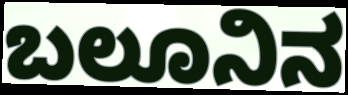
ಬಲೂನಿನ